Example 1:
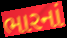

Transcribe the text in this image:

ભારનાં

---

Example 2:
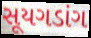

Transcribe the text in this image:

સૂયગડાંગ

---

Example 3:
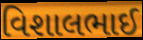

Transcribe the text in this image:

વિશાલભાઈ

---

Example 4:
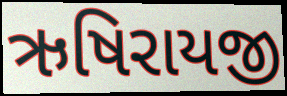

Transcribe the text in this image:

ઋષિરાયજી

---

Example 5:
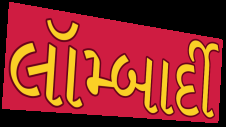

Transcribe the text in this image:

લૉમ્બાર્દી